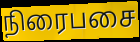
நிரைபசை